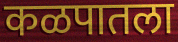
कळपातला